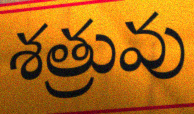
శత్రువు